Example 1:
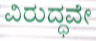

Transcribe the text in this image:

ವಿರುದ್ಧವೇ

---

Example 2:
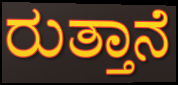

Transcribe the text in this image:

ರುತ್ತಾನೆ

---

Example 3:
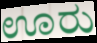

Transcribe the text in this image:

ಊರು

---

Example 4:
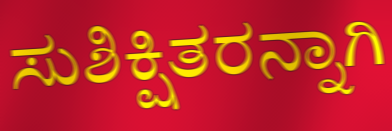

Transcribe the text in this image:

ಸುಶಿಕ್ಷಿತರನ್ನಾಗಿ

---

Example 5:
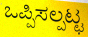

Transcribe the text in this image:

ಒಪ್ಪಿಸಲ್ಪಟ್ಟ